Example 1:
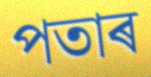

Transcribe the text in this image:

পতাৰ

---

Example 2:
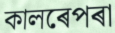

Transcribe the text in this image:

কালৰেপৰা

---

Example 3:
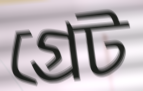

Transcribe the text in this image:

গ্ৰেট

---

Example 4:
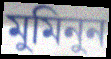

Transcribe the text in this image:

মুমিনুন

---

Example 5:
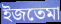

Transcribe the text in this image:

ইজতেমা